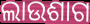
ଲାଉଶାଗ